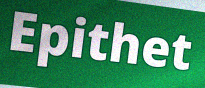
Epithet